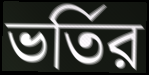
ভর্তির